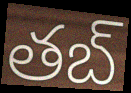
తబ్